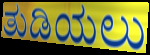
ತುಡಿಯಲು